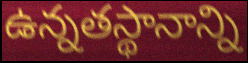
ఉన్నతస్థానాన్ని